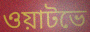
ওয়াটভে